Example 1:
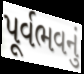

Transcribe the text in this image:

પૂર્વભવનું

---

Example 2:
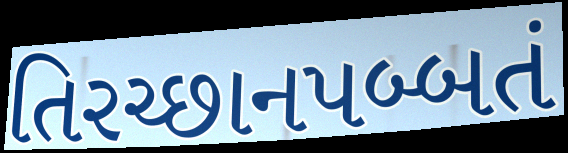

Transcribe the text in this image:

તિરચ્છાનપબ્બતં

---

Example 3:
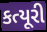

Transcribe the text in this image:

કત્યૂરી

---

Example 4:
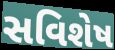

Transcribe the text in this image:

સવિશેષ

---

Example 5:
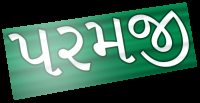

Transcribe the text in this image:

પરમજી